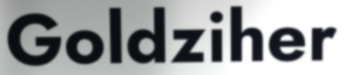
Goldziher